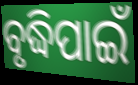
ବୃଦ୍ଧିପାଇଁ